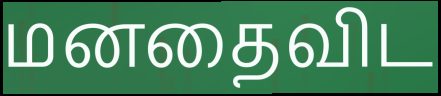
மனதைவிட